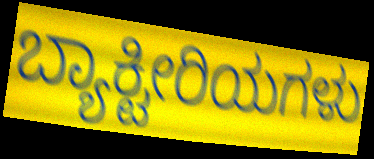
ಬ್ಯಾಕ್ಟೀರಿಯಗಳು